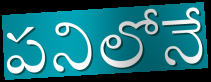
పనిలోనే